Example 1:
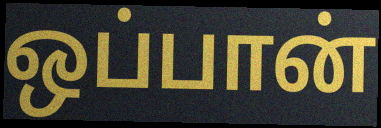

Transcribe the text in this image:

ஒப்பான்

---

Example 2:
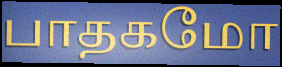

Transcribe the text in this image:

பாதகமோ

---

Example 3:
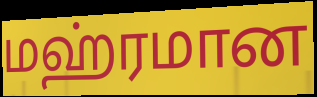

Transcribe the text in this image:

மஹ்ரமான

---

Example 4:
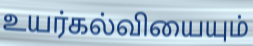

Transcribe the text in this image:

உயர்கல்வியையும்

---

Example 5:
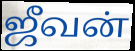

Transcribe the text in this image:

ஜீவன்